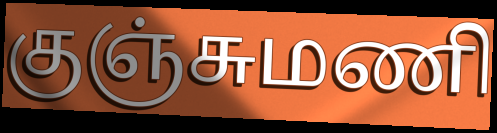
குஞ்சுமணி